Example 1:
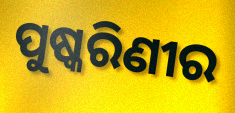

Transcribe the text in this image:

ପୁଷ୍କରିଣୀର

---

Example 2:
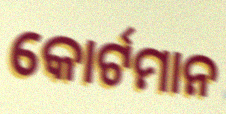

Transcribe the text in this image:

କୋର୍ଟମାନ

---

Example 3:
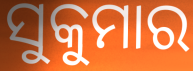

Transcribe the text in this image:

ସୁକୁମାର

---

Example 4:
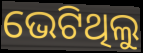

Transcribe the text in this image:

ଭେଟିଥିଲୁ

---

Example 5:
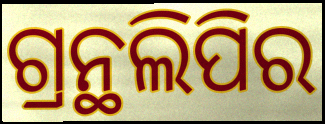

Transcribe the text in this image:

ଗ୍ରନ୍ଥଲିପିର